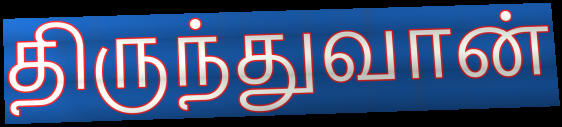
திருந்துவான்